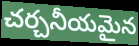
చర్చనీయమైన